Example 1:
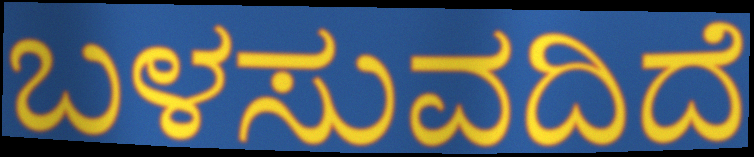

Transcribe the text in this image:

ಬಳಸುವದಿದೆ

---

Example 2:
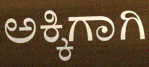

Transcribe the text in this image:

ಅಕ್ಕಿಗಾಗಿ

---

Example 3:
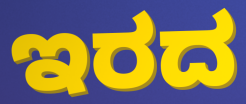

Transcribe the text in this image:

ಇರದ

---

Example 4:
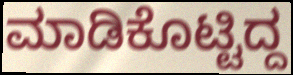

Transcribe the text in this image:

ಮಾಡಿಕೊಟ್ಟಿದ್ದ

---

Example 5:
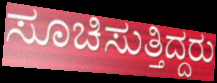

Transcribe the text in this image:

ಸೂಚಿಸುತ್ತಿದ್ದರು